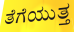
ತೆಗೆಯುತ್ತ